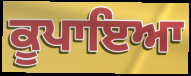
ਕੂਪਾਇਆ